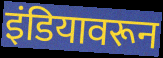
इंडियावरून